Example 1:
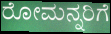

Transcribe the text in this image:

ರೋಮನ್ನರಿಗೆ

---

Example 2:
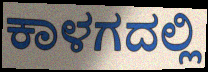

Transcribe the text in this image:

ಕಾಳಗದಲ್ಲಿ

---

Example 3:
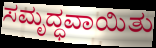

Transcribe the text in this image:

ಸಮೃದ್ಧವಾಯಿತು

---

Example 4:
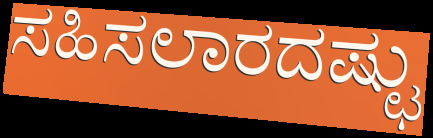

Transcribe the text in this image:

ಸಹಿಸಲಾರದಷ್ಟು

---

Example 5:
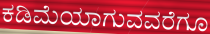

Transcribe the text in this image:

ಕಡಿಮೆಯಾಗುವವರೆಗೂ